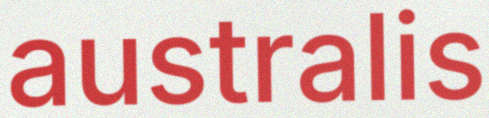
australis